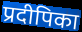
प्रदीपिका